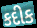
કદીક